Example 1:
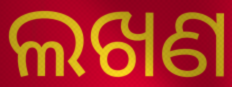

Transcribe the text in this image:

ଲଖଣ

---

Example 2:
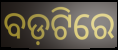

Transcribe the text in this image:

ବଡ଼ଟିରେ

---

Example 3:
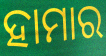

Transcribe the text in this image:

ହାମାର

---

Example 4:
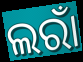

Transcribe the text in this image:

ଲରାଁ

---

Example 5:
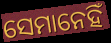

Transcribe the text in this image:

ସେମାନେହିଁ